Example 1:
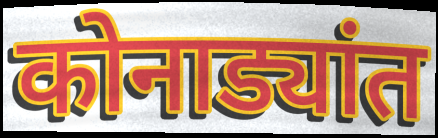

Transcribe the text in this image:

कोनाड्यांत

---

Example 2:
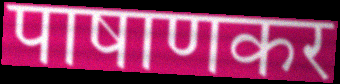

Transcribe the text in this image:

पाषाणकर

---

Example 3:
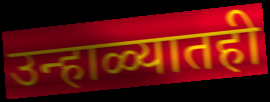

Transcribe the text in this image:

उन्हाळ्यातही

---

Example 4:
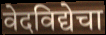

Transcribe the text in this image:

वेदविद्येचा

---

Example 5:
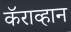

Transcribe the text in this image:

कॅराव्हान